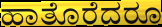
ಹಾತೊರೆದರೂ